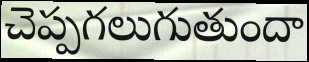
చెప్పగలుగుతుందా